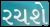
રચશે